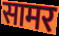
सामर